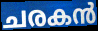
ചരകൻ